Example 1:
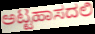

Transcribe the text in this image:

ಅಟ್ಟಹಾಸದಲಿ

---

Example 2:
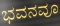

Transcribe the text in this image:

ಭವನವೂ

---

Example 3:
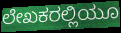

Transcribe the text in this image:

ಲೇಖಕರಲ್ಲಿಯೂ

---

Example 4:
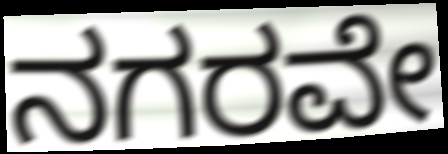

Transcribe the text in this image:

ನಗರವೇ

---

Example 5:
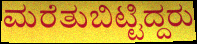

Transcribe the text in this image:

ಮರೆತುಬಿಟ್ಟಿದ್ದರು